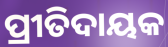
ପ୍ରୀତିଦାୟକ